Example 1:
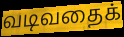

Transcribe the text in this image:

வடிவதைக்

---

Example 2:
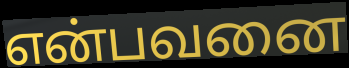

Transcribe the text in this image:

என்பவனை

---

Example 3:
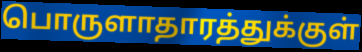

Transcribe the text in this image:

பொருளாதாரத்துக்குள்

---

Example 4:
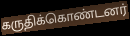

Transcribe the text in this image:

கருதிக்கொண்டனர்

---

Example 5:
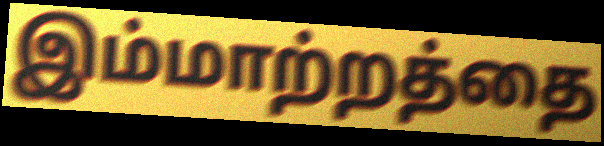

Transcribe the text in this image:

இம்மாற்றத்தை